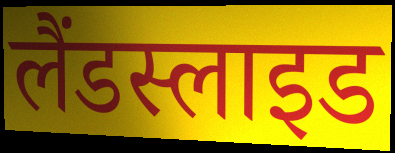
लैंडस्लाइड